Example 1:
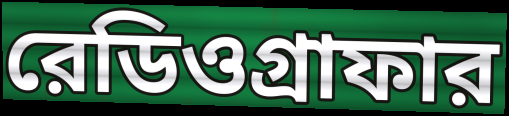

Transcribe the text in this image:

রেডিওগ্রাফার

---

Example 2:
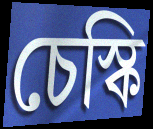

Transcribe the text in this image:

চেস্কি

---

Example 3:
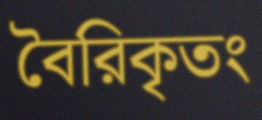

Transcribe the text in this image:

বৈরিকৃতং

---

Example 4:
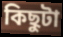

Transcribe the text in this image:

কিছুটা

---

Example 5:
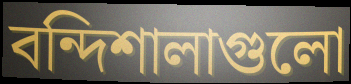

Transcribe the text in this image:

বন্দিশালাগুলো